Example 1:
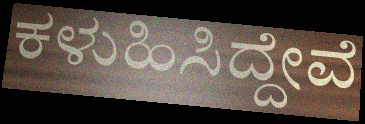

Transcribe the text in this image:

ಕಳುಹಿಸಿದ್ದೇವೆ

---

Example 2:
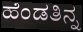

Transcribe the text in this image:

ಹೆಂಡತಿನ್ನ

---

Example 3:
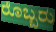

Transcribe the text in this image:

ರೊಬ್ಬರು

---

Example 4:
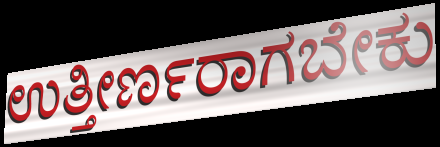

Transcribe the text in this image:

ಉತ್ತೀರ್ಣರಾಗಬೇಕು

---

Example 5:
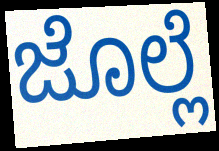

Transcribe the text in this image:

ಜೊಲ್ಲೆ